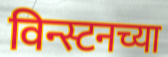
विन्स्टनच्या